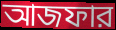
আজফার